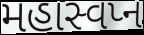
મહાસ્વપ્ન